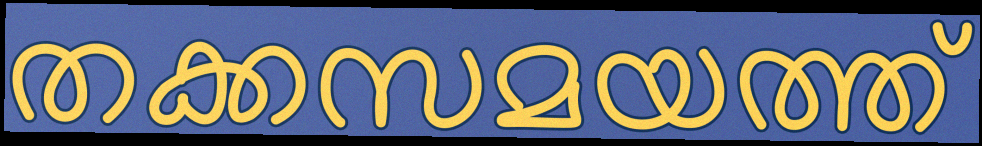
തക്കസമയത്ത്